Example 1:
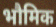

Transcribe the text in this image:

भौमिक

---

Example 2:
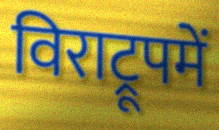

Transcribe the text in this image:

विराट्रूपमें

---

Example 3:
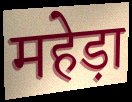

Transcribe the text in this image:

महेड़ा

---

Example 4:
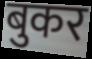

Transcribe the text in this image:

बुकर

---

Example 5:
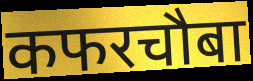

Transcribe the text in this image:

कफरचौबा